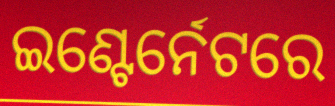
ଇଣ୍ଟେର୍ନେଟରେ